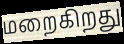
மறைகிறது